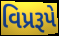
વિપ્રરૂપે